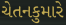
ચેતનકુમારે